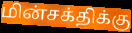
மின்சக்திக்கு